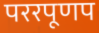
पररपूणप